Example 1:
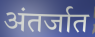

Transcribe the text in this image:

अंतर्जात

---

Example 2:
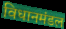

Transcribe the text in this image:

विधानमंडल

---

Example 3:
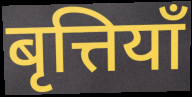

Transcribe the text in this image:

बृत्तियाँ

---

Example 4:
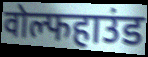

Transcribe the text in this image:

वोल्फहाउंड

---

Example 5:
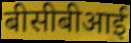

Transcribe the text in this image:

बीसीबीआई